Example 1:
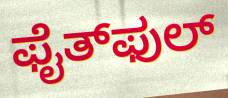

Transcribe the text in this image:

ಫೈತ್‌ಫುಲ್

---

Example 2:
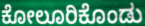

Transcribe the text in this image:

ಕೋಲೂರಿಕೊಂಡು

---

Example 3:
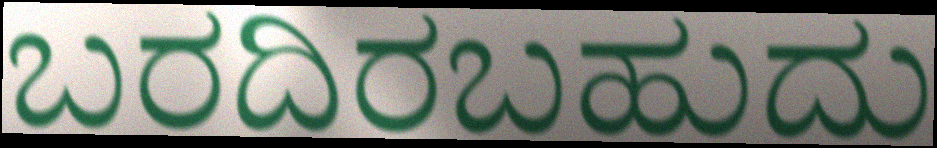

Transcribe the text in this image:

ಬರದಿರಬಹುದು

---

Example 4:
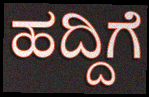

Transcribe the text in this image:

ಹದ್ದಿಗೆ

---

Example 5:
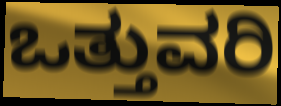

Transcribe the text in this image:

ಒತ್ತುವರಿ